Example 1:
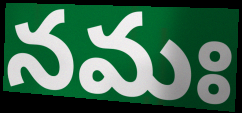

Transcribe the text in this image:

నమః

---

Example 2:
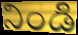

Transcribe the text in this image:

నిండి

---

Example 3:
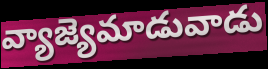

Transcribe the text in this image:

వ్యాజ్యెమాడువాడు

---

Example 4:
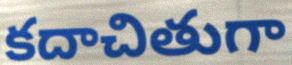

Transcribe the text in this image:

కదాచితుగా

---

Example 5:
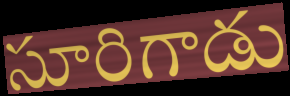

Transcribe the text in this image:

సూరిగాడు